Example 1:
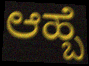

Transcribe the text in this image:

ಆಹ್ಬೆ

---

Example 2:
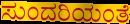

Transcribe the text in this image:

ಸುಂದರಿಯಂತೆ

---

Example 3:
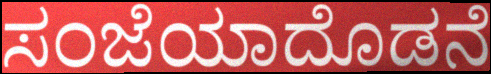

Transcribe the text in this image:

ಸಂಜೆಯಾದೊಡನೆ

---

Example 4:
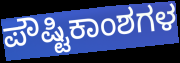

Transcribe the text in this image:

ಪೌಷ್ಟಿಕಾಂಶಗಳ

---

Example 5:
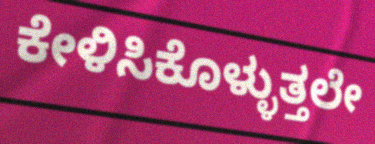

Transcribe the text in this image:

ಕೇಳಿಸಿಕೊಳ್ಳುತ್ತಲೇ